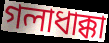
গলাধাক্কা